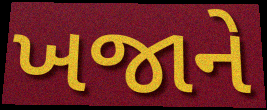
ખજાને